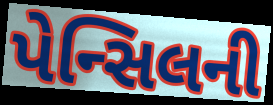
પેન્સિલની